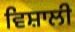
ਵਿਸ਼ਾਲੀ